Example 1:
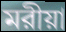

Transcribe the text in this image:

মরীয়া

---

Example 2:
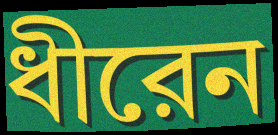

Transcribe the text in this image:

ধীরেন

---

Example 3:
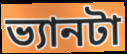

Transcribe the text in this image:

ভ্যানটা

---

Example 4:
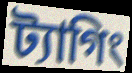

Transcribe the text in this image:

ট্যাগিং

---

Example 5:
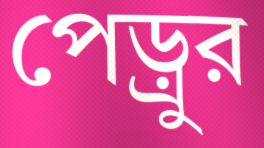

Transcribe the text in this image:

পেড়্রুর